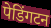
पेडिंगटन